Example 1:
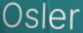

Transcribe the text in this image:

Osler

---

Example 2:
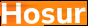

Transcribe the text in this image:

Hosur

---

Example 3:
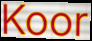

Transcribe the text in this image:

Koor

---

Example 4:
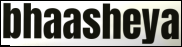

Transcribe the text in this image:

bhaasheya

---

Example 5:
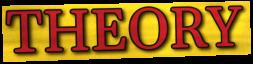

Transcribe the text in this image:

THEORY